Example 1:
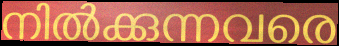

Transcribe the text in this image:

നിൽക്കുന്നവരെ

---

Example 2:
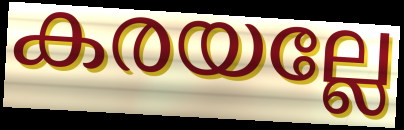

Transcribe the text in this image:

കരയല്ലേ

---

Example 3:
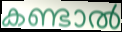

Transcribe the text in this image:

കണ്ടാൽ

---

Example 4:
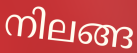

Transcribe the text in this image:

നിലങ്ങ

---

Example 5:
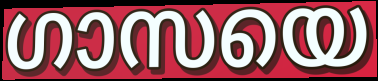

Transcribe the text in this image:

ഗാസയെ